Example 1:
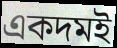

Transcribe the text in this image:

একদমই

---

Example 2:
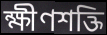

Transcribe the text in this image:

ক্ষীণশক্তি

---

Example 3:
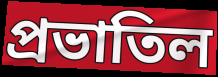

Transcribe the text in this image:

প্রভাতিল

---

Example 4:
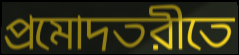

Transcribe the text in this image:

প্রমোদতরীতে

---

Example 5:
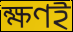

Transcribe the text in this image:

ক্ষণই